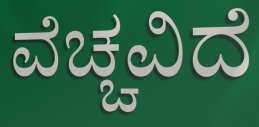
ವೆಚ್ಚವಿದೆ